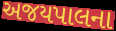
અજયપાલના